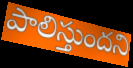
పాలిస్తుందని